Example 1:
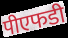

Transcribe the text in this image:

पीएफडी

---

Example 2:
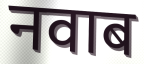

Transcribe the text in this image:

नवाब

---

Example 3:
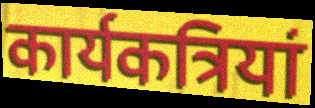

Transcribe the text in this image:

कार्यकत्रियां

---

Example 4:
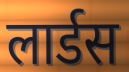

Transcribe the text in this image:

लार्डस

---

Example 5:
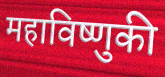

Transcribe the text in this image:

महाविष्णुकी